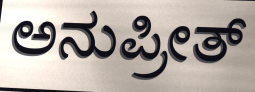
ಅನುಪ್ರೀತ್